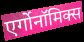
एर्गोनॉमिक्स